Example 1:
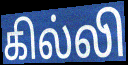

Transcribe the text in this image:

கில்லி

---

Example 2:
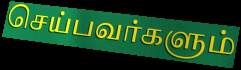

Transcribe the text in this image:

செய்பவர்களும்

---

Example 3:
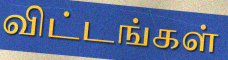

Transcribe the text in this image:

விட்டங்கள்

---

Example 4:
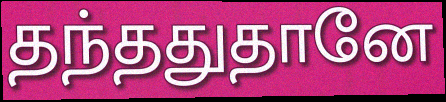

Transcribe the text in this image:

தந்ததுதானே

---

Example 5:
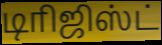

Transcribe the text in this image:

டிரிஜிஸ்ட்